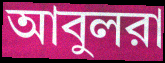
আবুলরা